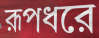
রূপধরে